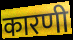
कारणी